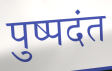
पुष्पदंत